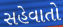
સહેવાતો